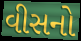
વીસનો